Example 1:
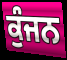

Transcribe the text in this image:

ਕੁੰਜਨ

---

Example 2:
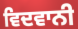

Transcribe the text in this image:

ਵਿਦਵਾਨੀ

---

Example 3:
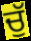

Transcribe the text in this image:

ਚੁੱ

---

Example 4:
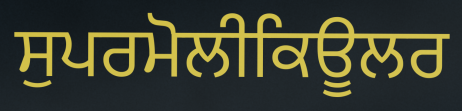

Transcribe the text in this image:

ਸੁਪਰਮੋਲੀਕਿਊਲਰ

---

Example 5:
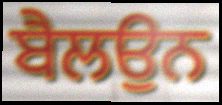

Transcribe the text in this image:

ਬੈਲਉਨ